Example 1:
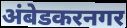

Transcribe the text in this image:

अंबेडकरनगर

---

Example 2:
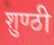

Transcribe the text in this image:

शुण्ठी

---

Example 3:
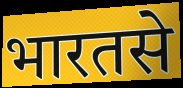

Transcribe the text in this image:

भारतसे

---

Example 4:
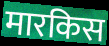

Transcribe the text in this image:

मारकिस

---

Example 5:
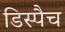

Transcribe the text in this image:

डिस्‍पैच